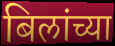
बिलांच्या